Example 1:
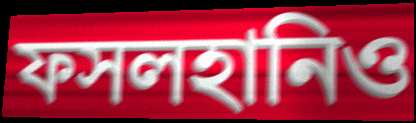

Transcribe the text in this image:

ফসলহানিও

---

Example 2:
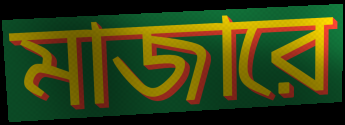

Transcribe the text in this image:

মাজারে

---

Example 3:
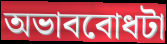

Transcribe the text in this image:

অভাববোধটা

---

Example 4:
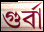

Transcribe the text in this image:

গুর্বা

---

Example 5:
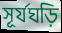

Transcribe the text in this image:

সূর্যঘড়ি